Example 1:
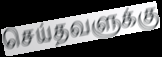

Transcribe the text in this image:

செய்தவளுக்கு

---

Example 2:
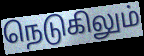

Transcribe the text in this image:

நெடுகிலும்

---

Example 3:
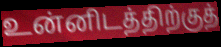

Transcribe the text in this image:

உன்னிடத்திற்குத்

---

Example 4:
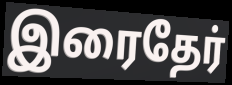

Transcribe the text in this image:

இரைதேர்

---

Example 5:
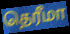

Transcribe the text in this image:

தெரீமா